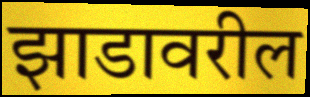
झाडावरील